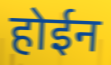
होईन